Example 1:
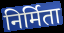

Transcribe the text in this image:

निर्मिता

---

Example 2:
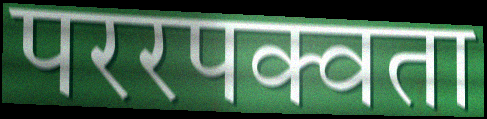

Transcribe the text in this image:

पररपक्वता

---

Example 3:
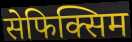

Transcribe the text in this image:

सेफिक्सिम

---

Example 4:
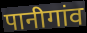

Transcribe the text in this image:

पानीगांव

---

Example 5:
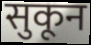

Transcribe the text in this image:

सुकून